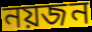
নয়জন